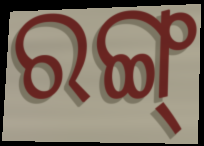
ରଙ୍ଗ୍